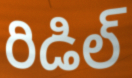
రిడిల్